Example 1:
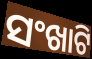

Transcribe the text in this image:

ସଂଖାଟି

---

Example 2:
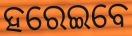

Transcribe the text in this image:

ହରେଇବେ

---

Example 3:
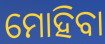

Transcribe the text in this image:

ମୋହିବା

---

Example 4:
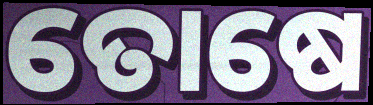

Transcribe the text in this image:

ତୋଷେ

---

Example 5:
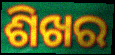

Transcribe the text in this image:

ଶିଖର